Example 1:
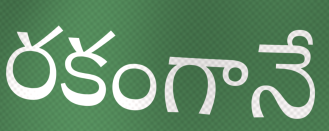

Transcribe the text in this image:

రకంగానే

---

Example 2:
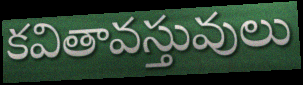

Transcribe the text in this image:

కవితావస్తువులు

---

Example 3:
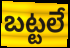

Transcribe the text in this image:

బట్టలే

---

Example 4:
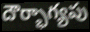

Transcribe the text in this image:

దౌర్భాగ్యపు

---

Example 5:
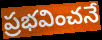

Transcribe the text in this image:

ప్రభవించనే